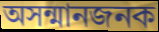
অসন্মানজনক